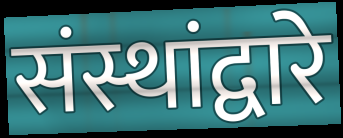
संस्थांद्वारे